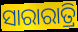
ସାରାରାତ୍ରି